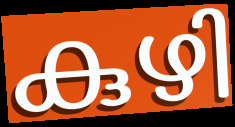
കുഴി